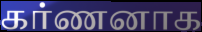
கர்ணனாக